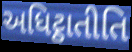
અધિટ્ઠાતીતિ